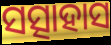
ସତ୍ସାହାସ